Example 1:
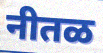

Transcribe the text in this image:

नीतळ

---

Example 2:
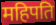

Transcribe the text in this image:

महिपति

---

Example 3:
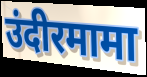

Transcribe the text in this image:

उंदीरमामा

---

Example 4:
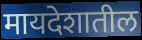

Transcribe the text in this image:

मायदेशातील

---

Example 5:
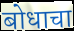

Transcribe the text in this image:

बोधाचा